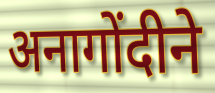
अनागोंदीने